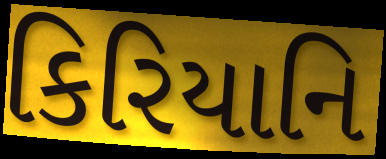
કિરિયાનિ